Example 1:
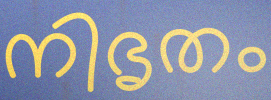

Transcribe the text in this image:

നിഭൃതം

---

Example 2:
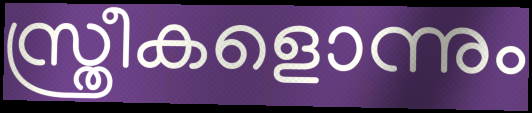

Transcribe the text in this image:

സ്ത്രീകളൊന്നും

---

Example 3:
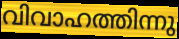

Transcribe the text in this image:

വിവാഹത്തിന്നു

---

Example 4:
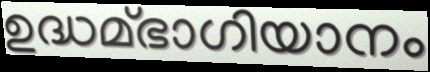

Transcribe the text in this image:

ഉദ്ധമ്ഭാഗിയാനം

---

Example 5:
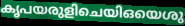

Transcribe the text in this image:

കൃപയരുളിചെയിഒയെശു